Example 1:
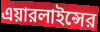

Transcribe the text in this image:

এয়ারলাইন্সের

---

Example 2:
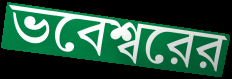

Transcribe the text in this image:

ভবেশ্বরের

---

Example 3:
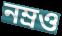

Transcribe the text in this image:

নম্রও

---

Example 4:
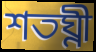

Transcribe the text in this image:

শতঘ্নী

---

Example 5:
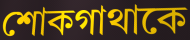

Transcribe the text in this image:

শোকগাথাকে